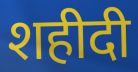
शहीदी